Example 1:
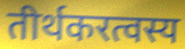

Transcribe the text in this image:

तीर्थकरत्वस्य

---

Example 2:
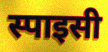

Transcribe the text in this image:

स्पाइसी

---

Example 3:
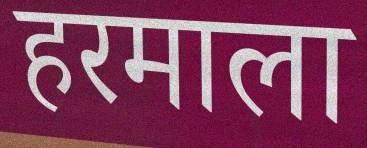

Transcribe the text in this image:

हरमाला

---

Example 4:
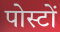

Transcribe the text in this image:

पोस्टों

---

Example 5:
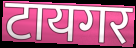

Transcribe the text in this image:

टायगर